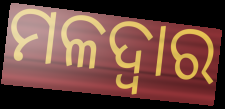
ମଳଦ୍ୱାର